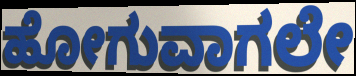
ಹೋಗುವಾಗಲೇ